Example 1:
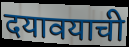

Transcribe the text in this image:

दयावयाची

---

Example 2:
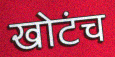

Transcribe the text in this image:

खोटंच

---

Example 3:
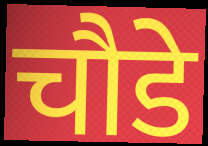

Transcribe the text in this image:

चौडे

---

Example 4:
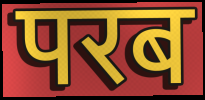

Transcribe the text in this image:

परब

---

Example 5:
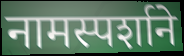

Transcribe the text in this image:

नामस्पर्शाने